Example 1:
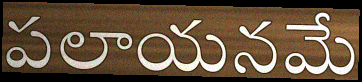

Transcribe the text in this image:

పలాయనమే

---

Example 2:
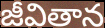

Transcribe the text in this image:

జీవితాన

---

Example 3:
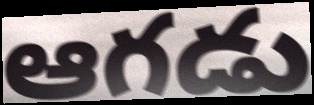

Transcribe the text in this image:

ఆగడు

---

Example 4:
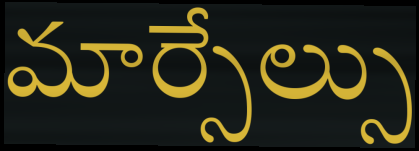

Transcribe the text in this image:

మార్సేల్సు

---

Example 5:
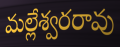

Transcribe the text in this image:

మల్లేశ్వరరావు